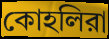
কোহলিরা